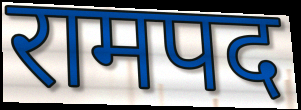
रामपद